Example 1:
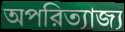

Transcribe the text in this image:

অপরিত্যাজ্য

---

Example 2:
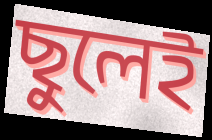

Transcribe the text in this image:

ছুলেই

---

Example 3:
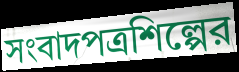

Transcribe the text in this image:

সংবাদপত্রশিল্পের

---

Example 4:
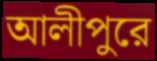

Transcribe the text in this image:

আলীপুরে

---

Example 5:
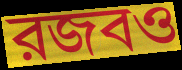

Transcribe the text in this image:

রজবও